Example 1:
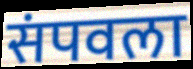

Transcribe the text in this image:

संपवला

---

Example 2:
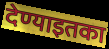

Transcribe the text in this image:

देण्याइतका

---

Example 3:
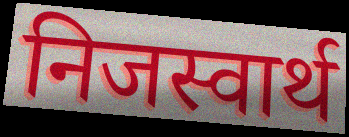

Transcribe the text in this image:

निजस्वार्थ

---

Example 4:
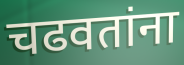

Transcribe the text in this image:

चढवतांना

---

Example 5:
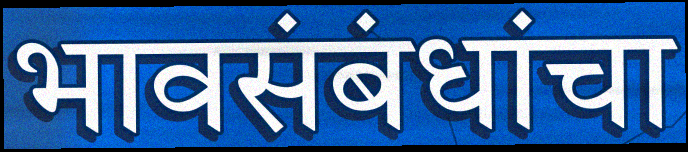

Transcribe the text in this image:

भावसंबंधांचा